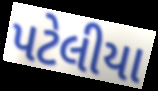
પટેલીયા